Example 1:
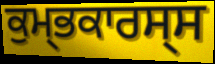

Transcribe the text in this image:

ਕੁਮ੍ਭਕਾਰਸ੍ਸ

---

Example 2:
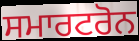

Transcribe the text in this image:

ਸਮਾਰਟਰੋਨ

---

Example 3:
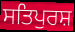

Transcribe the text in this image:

ਸਤਿਪੁਰਸ਼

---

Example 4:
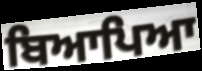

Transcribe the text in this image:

ਬਿਆਪਿਆ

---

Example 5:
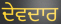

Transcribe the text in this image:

ਦੇਵਦਾਰ